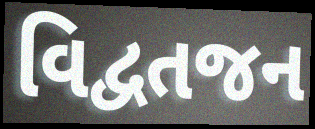
વિદ્વતજન